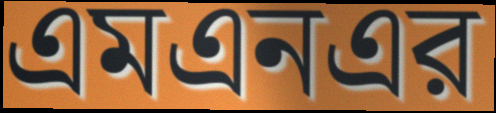
এমএনএর